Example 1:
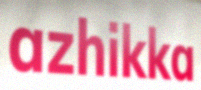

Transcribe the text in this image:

azhikka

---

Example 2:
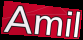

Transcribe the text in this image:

Amil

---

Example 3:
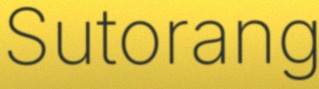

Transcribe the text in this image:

Sutorang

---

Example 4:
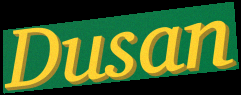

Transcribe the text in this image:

Dusan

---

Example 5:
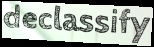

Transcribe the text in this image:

declassify